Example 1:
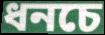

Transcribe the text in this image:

ধনচে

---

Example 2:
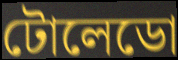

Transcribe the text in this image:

টোলেডো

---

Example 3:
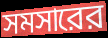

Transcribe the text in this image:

সমসারের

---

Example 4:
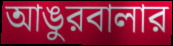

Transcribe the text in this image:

আঙুরবালার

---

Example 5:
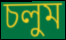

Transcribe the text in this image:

চলুম